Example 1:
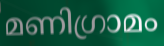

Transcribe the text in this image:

മണിഗ്രാമം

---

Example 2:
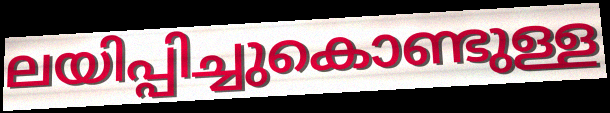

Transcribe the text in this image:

ലയിപ്പിച്ചുകൊണ്ടുള്ള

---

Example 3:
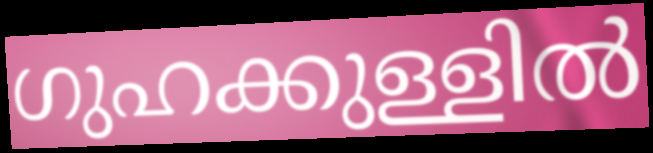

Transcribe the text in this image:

ഗുഹക്കുള്ളിൽ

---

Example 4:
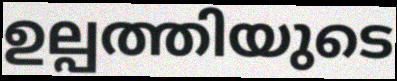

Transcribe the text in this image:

ഉല്പത്തിയുടെ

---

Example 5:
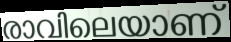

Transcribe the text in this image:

രാവിലെയാണ്